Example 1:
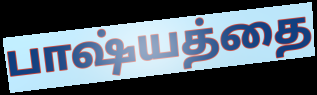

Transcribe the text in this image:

பாஷ்யத்தை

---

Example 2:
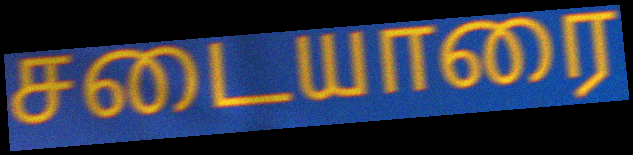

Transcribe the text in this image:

சடையாரை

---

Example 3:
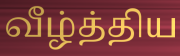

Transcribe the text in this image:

வீழ்த்திய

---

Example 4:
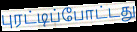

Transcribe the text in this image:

புரட்டிப்போட்டது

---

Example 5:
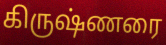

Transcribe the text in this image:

கிருஷ்ணரை